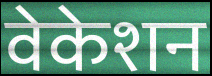
वेकेशन